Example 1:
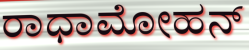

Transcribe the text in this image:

ರಾಧಾಮೋಹನ್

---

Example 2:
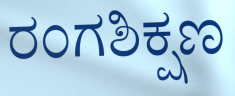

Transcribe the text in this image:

ರಂಗಶಿಕ್ಷಣ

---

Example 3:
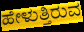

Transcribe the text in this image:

ಹೇಳುತ್ತಿರುವ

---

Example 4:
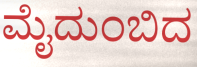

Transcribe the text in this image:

ಮೈದುಂಬಿದ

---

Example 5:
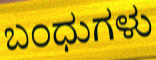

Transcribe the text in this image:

ಬಂಧುಗಳು